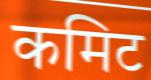
कमिट